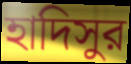
হাদিসুর